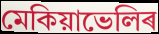
মেকিয়াভেলিৰ